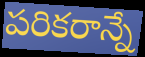
పరికరాన్నే